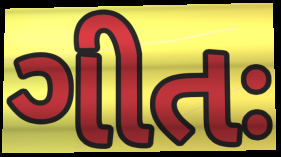
ગીતઃ